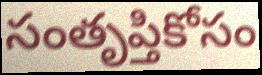
సంతృప్తికోసం